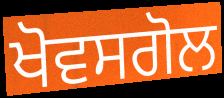
ਖੋਵਸਗੋਲ